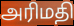
அரிமதி